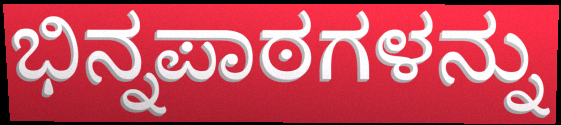
ಭಿನ್ನಪಾಠಗಳನ್ನು